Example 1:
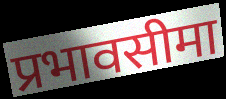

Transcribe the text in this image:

प्रभावसीमा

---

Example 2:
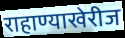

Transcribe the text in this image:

राहाण्याखेरीज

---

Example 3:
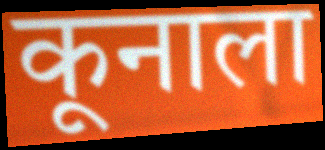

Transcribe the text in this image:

कूनाला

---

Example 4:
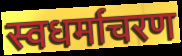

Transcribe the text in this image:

स्वधर्माचरण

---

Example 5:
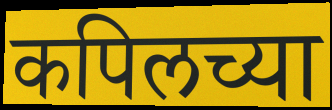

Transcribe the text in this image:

कपिलच्या